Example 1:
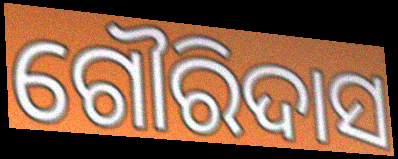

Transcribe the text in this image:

ଗୌରିଦାସ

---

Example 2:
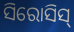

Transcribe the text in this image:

ସିରୋସିସ୍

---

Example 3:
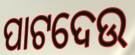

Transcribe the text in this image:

ପାଟଦେଉ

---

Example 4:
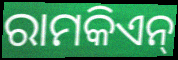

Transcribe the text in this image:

ରାମକିଏନ୍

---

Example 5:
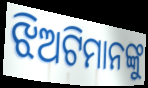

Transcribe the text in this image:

ଝିଅଟିମାନଙ୍କୁ